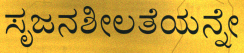
ಸೃಜನಶೀಲತೆಯನ್ನೇ